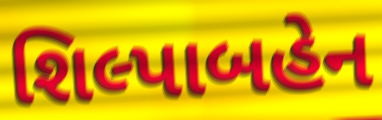
શિલ્પાબહેન